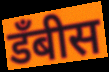
डॅंबीस